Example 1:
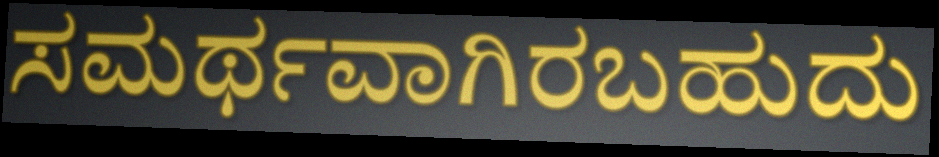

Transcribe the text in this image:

ಸಮರ್ಥವಾಗಿರಬಹುದು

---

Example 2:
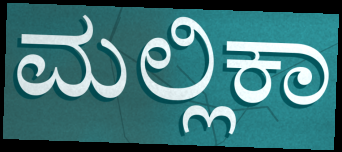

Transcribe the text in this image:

ಮಲ್ಲಿಕಾ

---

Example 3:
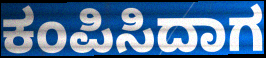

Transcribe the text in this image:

ಕಂಪಿಸಿದಾಗ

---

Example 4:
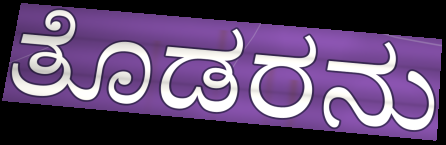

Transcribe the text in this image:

ತೊಡರನು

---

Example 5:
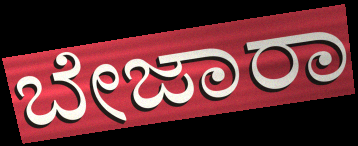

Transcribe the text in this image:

ಬೇಜಾರಾ